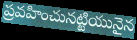
ప్రవహించునట్టియునైన